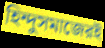
হিন্দুসমাজেরই